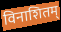
विनाशितम्